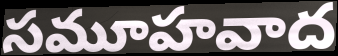
సమూహవాద